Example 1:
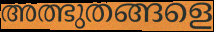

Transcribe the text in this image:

അത്ഭുതങ്ങളെ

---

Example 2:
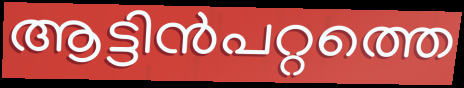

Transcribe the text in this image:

ആട്ടിൻപറ്റത്തെ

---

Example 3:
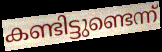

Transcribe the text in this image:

കണ്ടിട്ടുണ്ടെന്ന്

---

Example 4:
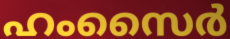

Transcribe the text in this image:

ഹംസൈർ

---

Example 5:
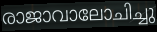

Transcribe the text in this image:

രാജാവാലോചിച്ചു